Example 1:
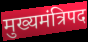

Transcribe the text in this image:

मुख्यमंत्रिपद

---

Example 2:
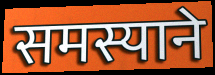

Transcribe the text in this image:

समस्याने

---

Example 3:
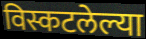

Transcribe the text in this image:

विस्कटलेल्या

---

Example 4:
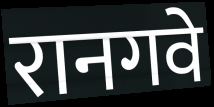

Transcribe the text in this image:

रानगवे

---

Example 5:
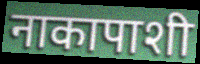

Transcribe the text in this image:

नाकापाशी